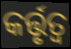
କର୍ତ୍ତୃତ୍ୱ